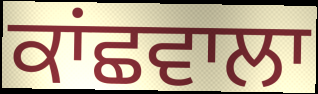
ਕਾਂਛਵਾਲਾ